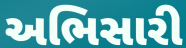
અભિસારી